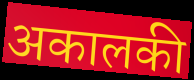
अकालकी